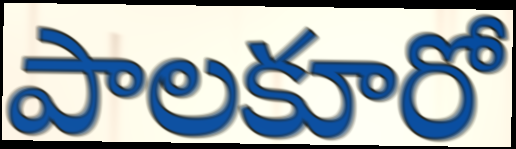
పాలకూరో